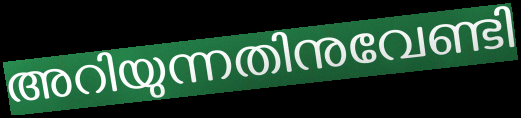
അറിയുന്നതിനുവേണ്ടി